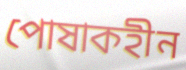
পোষাকহীন